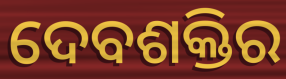
ଦେବଶକ୍ତିର